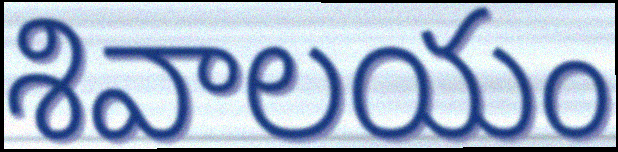
శివాలయం